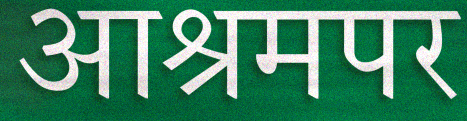
आश्रमपर